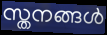
സ്തനങ്ങൾ